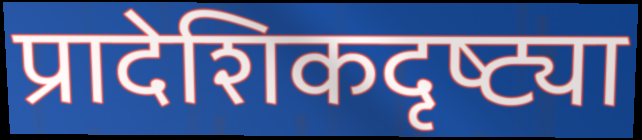
प्रादेशिकदृष्ट्या